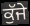
ਕੁੱਜੇ